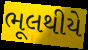
ભૂલથીયે